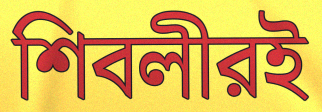
শিবলীরই